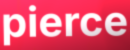
pierce